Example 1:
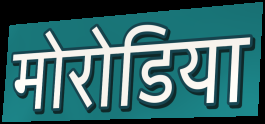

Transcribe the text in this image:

मोरोडिया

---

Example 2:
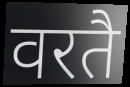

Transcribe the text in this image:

वरतै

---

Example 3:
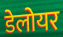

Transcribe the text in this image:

डेलोयर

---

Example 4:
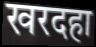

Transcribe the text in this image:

खरदहा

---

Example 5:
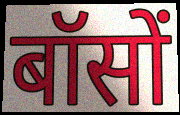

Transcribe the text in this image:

बॉसों